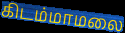
கிடம்மாமலை